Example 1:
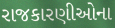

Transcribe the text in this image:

રાજકારણીઓના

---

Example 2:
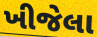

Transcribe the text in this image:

ખીજેલા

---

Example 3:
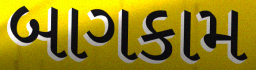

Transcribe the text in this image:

બાગકામ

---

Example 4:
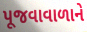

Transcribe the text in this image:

પૂજવાવાળાને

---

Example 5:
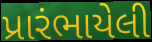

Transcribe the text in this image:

પ્રારંભાયેલી